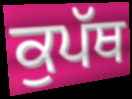
ਕੁਪੱਥ